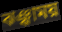
ঝঞ্ঝাময়